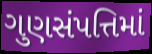
ગુણસંપત્તિમાં